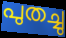
പുതച്ചു